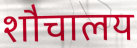
शौचालय